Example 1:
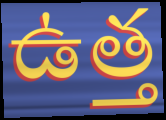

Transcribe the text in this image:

ఉత్త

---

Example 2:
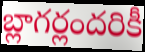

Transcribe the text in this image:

బ్లాగర్లందరికీ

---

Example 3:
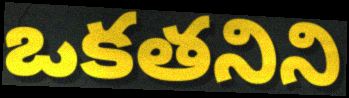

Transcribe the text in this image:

ఒకతనిని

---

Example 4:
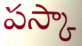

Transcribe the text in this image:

పస్కా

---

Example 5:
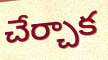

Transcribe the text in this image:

చేర్చాక